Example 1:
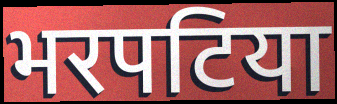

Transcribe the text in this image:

भरपटिया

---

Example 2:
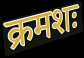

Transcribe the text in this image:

क्रमशः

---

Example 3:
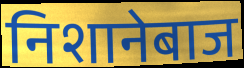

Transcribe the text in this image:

निशानेबाज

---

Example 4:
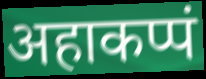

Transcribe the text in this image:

अहाकप्पं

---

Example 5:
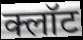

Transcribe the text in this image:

क्‍लॉट